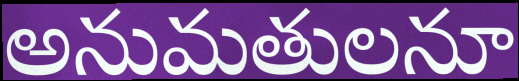
అనుమతులనూ